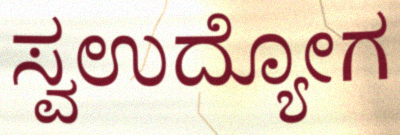
ಸ್ವಉದ್ಯೋಗ